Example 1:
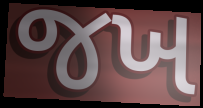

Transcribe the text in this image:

જખ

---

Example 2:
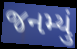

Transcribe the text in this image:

જનમ્યું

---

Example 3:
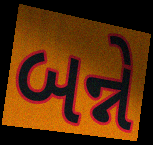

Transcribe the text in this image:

બન્ને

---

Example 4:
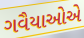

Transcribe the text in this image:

ગવૈયાઓએ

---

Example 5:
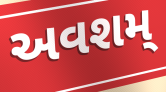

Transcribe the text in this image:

અવશમ્